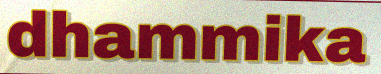
dhammika